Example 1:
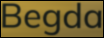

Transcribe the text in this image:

Begda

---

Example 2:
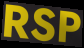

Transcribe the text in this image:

RSP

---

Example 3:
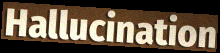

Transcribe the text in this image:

Hallucination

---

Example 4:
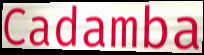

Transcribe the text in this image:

Cadamba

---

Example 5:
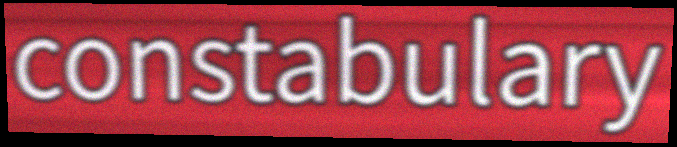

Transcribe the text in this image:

constabulary